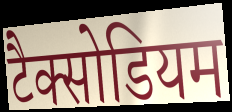
टैक्सोडियम